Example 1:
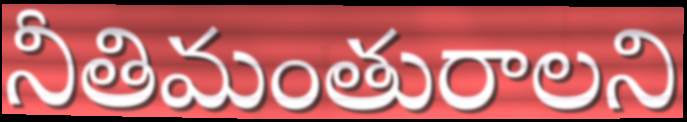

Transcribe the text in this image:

నీతిమంతురాలని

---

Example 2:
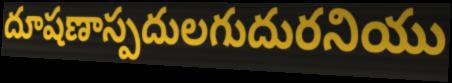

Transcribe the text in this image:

దూషణాస్పదులగుదురనియు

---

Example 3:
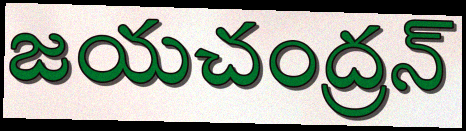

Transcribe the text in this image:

జయచంద్రన్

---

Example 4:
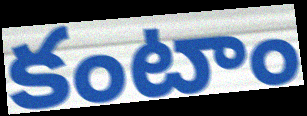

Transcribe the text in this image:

కంటాం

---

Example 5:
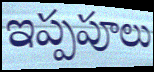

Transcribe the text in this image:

ఇప్పపూలు